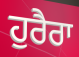
ਹੁਰੈਰਾ